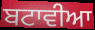
ਬਟਾਵੀਆ